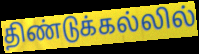
திண்டுக்கல்லில்